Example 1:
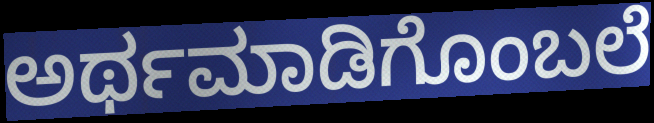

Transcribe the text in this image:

ಅರ್ಥಮಾಡಿಗೊಂಬಲೆ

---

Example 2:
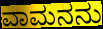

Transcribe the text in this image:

ವಾಮನನು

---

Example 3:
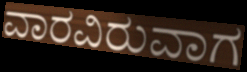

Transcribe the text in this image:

ವಾರವಿರುವಾಗ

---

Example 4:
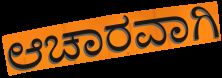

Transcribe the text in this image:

ಆಚಾರವಾಗಿ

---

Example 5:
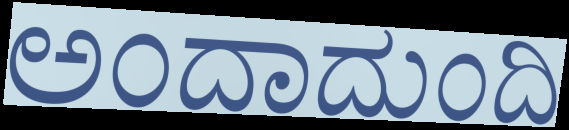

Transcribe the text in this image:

ಅಂದಾದುಂದಿ